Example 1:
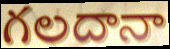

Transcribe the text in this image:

గలదానా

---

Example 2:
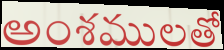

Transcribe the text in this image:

అంశములతో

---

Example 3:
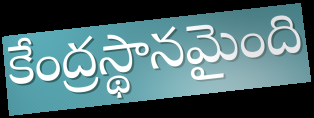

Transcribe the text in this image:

కేంద్రస్థానమైంది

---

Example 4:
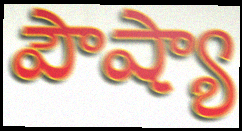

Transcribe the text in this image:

పౌష్యా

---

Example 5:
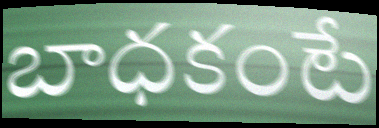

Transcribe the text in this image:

బాధకంటే